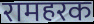
रामहरक